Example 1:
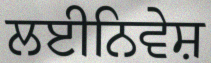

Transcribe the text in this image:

ਲਈਨਿਵੇਸ਼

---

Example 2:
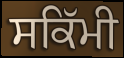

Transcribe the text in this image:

ਸਕਿੱਮੀ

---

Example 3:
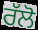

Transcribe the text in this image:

ਰੱਲੋ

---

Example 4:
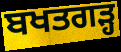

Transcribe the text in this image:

ਬਖਤਗੜ੍ਹ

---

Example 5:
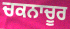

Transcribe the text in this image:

ਚਕਨਾਚੂਰ